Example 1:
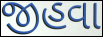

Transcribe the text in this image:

જીહવા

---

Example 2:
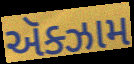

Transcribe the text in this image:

ઍક્ઝામ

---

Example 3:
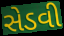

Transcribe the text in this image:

સેડવી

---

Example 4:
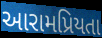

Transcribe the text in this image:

આરામપ્રિયતા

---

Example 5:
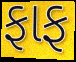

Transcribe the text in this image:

ફાફ